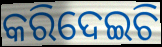
କରିଦେଇଚି